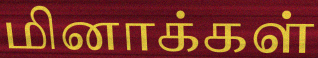
மினாக்கள்